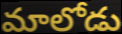
మాలోడు